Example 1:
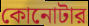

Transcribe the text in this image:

কোনোটার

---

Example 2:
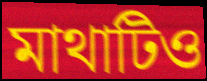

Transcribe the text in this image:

মাথাটিও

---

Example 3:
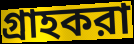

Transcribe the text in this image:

গ্রাহকরা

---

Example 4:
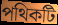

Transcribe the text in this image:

পথিকটি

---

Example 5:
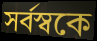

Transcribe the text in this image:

সর্বস্বকে